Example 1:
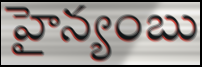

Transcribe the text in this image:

హైన్యంబు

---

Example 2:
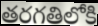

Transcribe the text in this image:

తరగతిలోకి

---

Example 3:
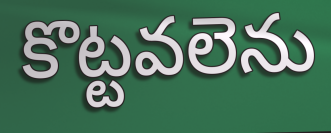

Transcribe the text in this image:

కొట్టవలెను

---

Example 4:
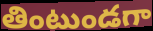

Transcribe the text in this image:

తింటుండగా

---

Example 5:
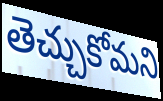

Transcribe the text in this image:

తెచ్చుకోమని